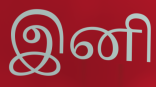
இனி